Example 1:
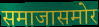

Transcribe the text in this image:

समाजासमोर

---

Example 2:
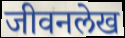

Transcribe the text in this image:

जीवनलेख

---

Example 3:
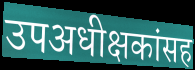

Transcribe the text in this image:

उपअधीक्षकांसह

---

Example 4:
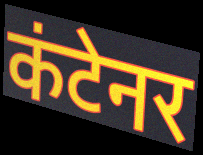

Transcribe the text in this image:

कंटेनर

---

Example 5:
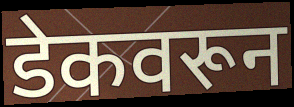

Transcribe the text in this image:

डेकवरून